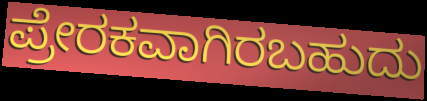
ಪ್ರೇರಕವಾಗಿರಬಹುದು